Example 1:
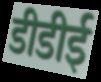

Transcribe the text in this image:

डीडीई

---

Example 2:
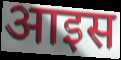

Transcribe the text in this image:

आइस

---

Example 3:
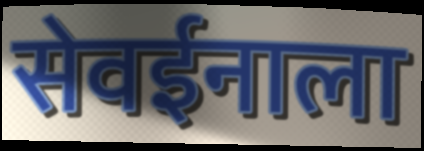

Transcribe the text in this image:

सेवईनाला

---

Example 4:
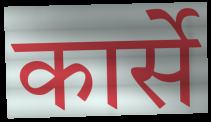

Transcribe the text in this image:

कार्से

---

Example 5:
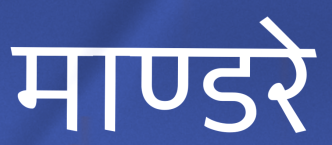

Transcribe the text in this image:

माण्डरे